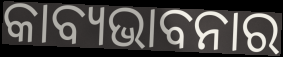
କାବ୍ୟଭାବନାର